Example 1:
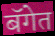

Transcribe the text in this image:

बॅगेत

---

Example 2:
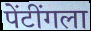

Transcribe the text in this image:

पेंटींगला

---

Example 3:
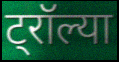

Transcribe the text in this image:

ट्रॉल्या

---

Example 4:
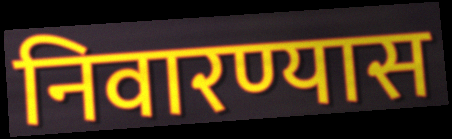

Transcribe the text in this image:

निवारण्यास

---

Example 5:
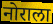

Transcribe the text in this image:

नोराला